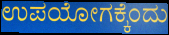
ಉಪಯೋಗಕ್ಕೆಂದು